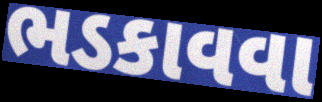
ભડકાવવા